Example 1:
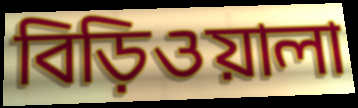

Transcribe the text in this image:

বিড়িওয়ালা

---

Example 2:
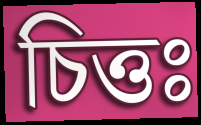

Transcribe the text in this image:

চিত্তঃ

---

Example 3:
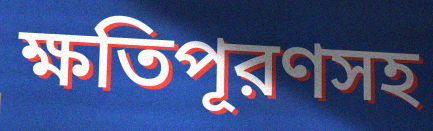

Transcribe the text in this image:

ক্ষতিপূরণসহ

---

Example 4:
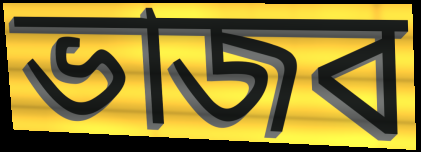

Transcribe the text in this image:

ভাজব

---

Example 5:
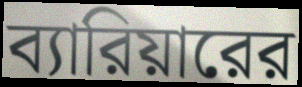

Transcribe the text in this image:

ব্যারিয়ারের